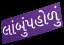
લાંબુંપહોળું